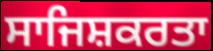
ਸਾਜਿਸ਼ਕਰਤਾ